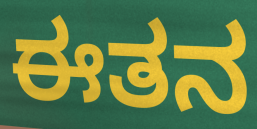
ಈತನ